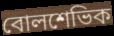
বোলশেভিক